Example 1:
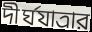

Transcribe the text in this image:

দীর্ঘযাত্রার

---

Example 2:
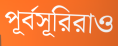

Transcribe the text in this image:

পূর্বসূরিরাও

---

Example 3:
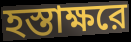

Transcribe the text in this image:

হস্তাক্ষরে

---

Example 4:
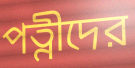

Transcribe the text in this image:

পত্নীদের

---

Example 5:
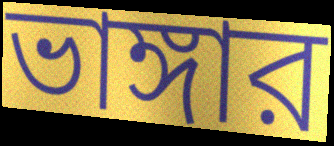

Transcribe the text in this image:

ভাঙ্গার